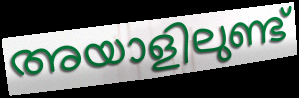
അയാളിലുണ്ട്